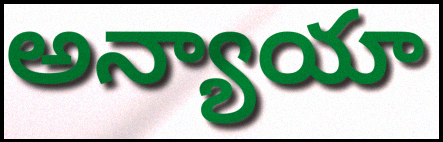
అన్యాయా